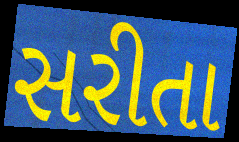
સરીતા